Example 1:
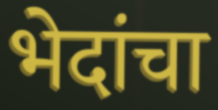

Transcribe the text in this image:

भेदांचा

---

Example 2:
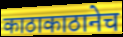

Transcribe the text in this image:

काठाकाठानेच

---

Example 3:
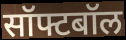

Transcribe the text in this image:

सॉफ्टबॉल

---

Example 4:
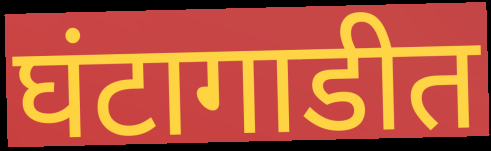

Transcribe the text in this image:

घंटागाडीत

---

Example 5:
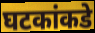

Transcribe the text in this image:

घटकांकडे